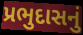
પ્રભુદાસનું